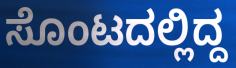
ಸೊಂಟದಲ್ಲಿದ್ದ